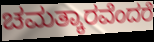
ಚಮತ್ಕಾರವೆಂದರೆ